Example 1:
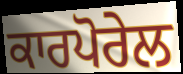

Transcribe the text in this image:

ਕਾਰਪੋਰੇਲ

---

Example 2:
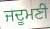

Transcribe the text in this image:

ਜਦੂਮਣੀ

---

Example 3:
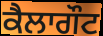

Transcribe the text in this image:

ਕੈਲਾਗੌਟ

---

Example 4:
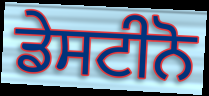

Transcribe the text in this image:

ਡੇਸਟੀਨੋ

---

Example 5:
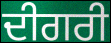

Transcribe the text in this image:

ਦੀਗਰੀ